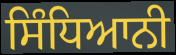
ਸਿੰਧਿਆਨੀ